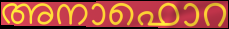
അനാഫൊറ